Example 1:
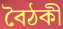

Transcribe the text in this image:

বৈঠকী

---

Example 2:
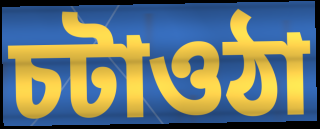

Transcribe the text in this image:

চটাওঠা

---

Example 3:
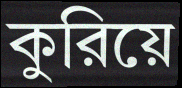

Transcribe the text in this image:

কুরিয়ে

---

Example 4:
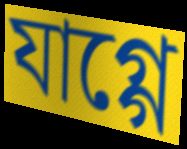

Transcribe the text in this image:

যাগ্গে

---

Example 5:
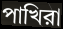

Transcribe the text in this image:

পাখিরা